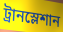
ট্রানস্লেশান